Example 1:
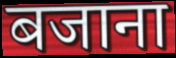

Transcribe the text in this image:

बजाना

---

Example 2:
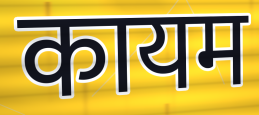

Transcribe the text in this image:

कायम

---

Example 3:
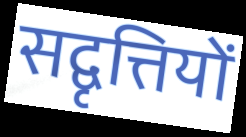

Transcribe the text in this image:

सद्वृत्तियों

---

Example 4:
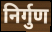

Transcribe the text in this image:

निर्गुण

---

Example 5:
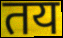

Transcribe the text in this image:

तय